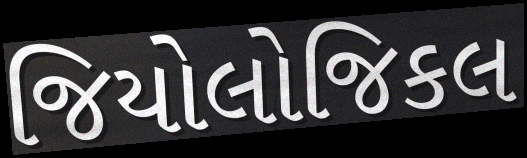
જિયોલોજિકલ